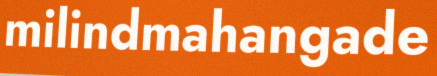
milindmahangade